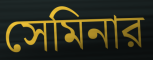
সেমিনার